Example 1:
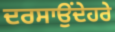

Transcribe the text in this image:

ਦਰਸਾਉਂਦੇਹਰੇ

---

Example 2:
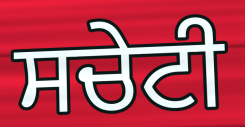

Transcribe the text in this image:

ਸਚੇਟੀ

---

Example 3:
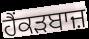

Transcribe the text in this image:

ਹੈਂਕੜਬਾਜ਼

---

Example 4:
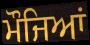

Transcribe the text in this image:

ਮੌਜਿਆਂ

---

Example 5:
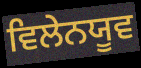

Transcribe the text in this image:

ਵਿਲੇਨਯੂਵ